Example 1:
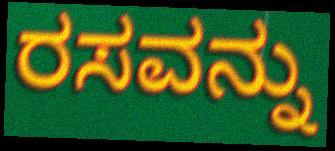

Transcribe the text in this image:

ರಸವನ್ನು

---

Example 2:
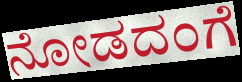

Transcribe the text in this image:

ನೋಡದಂಗೆ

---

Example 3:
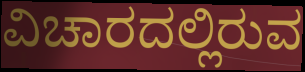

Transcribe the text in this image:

ವಿಚಾರದಲ್ಲಿರುವ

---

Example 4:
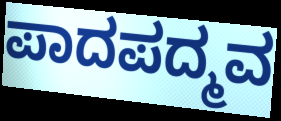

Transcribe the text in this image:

ಪಾದಪದ್ಮವ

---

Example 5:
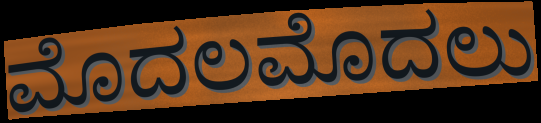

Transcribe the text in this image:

ಮೊದಲಮೊದಲು